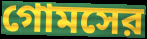
গোমসের